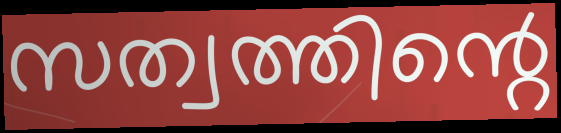
സത്വത്തിന്റെ